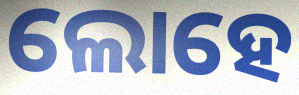
ଲୋହେ